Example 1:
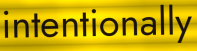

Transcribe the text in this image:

intentionally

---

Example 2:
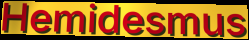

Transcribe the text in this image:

Hemidesmus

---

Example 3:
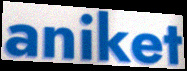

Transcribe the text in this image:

aniket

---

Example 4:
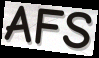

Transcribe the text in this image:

AFS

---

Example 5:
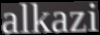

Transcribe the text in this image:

alkazi